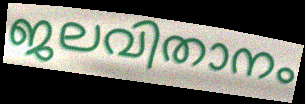
ജലവിതാനം